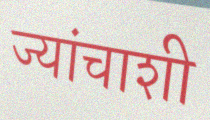
ज्यांचाशी